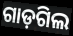
ଗାଡ଼ଗିଲ